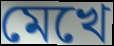
মেখে